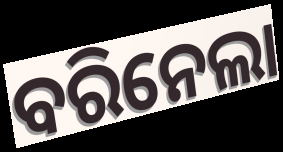
ବରିନେଲା